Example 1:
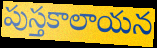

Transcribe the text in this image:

పుస్తకాలాయన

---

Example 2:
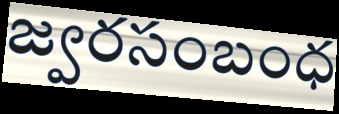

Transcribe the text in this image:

జ్వరసంబంధ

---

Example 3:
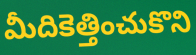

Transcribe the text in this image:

మీదికెత్తించుకొని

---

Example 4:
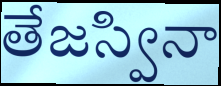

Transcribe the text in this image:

తేజస్వినా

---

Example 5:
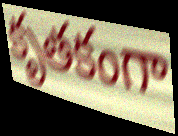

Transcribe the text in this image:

కృతకంగా